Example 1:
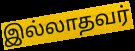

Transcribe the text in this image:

இல்லாதவர்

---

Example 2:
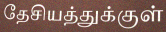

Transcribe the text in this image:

தேசியத்துக்குள்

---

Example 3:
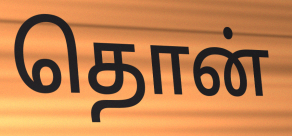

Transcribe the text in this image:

தொன்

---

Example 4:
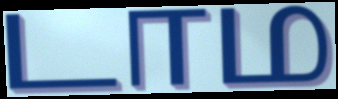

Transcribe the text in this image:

டாம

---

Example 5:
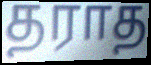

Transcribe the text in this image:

தராத